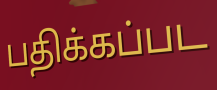
பதிக்கப்பட